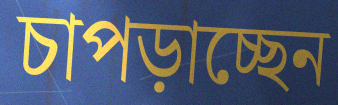
চাপড়াচ্ছেন